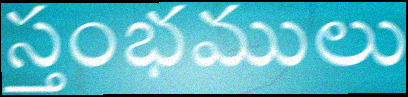
స్తంభములు